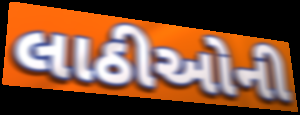
લાઠીઓની